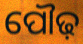
ପୌଢ଼